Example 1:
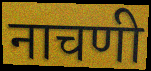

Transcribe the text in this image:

नाचणी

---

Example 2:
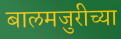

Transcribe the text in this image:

बालमजुरीच्या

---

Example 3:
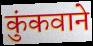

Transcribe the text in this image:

कुंकवाने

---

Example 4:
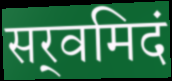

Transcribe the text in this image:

सर्वमिदं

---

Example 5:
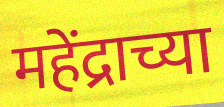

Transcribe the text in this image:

महेंद्राच्या